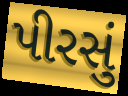
પીરસું